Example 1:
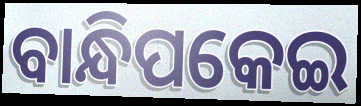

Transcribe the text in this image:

ବାନ୍ଧିପକେଇ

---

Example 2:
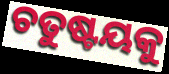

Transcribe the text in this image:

ଚତୁଷ୍ଟୟକୁ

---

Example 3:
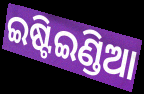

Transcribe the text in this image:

ଇଷ୍ଟିଇଣ୍ଡିଆ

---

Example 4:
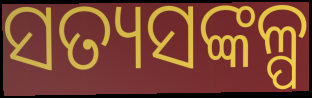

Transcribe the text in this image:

ସତ୍ୟସଙ୍କଳ୍ପ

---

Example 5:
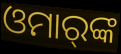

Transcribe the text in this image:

ଓମାର୍‌ଙ୍କ